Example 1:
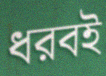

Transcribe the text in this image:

ধরবই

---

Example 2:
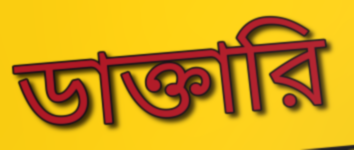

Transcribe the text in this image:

ডাক্তারি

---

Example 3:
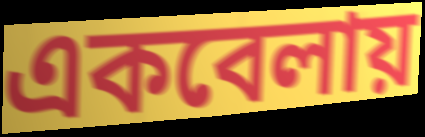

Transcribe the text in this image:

একবেলায়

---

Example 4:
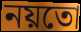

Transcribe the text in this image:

নয়তো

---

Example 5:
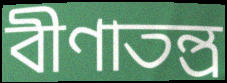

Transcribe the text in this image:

বীণাতন্ত্র